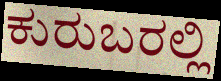
ಕುರುಬರಲ್ಲಿ